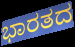
ಭಾರತದ